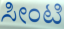
ಸೀಂಟಿ